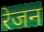
रेजन